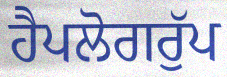
ਹੈਪਲੋਗਰੁੱਪ